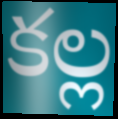
కల్ల